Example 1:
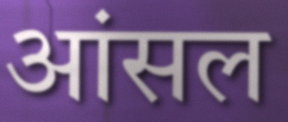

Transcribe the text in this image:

आंसल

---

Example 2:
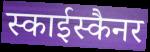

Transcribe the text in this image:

स्काईस्कैनर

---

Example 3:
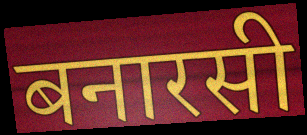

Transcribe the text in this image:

बनारसी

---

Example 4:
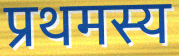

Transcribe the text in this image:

प्रथमस्य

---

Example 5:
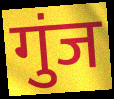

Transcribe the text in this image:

गुंज